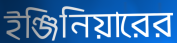
ইঞ্জিনিয়ারের